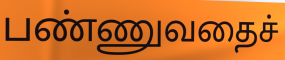
பண்ணுவதைச்